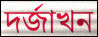
দৰ্জাখন